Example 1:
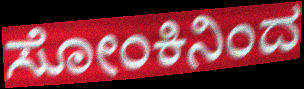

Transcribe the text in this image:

ಸೋಂಕಿನಿಂದ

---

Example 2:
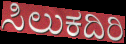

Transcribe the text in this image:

ಸಿಲುಕದಿರಿ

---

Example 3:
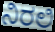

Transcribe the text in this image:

ನಿರಲಿ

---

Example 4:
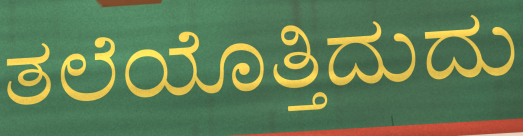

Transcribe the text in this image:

ತಲೆಯೊತ್ತಿದುದು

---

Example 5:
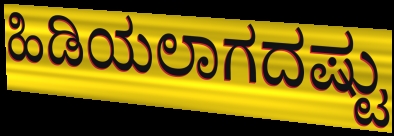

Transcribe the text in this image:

ಹಿಡಿಯಲಾಗದಷ್ಟು